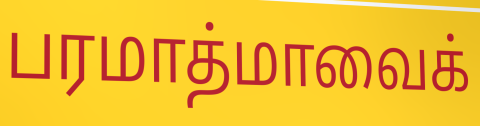
பரமாத்மாவைக்